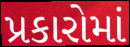
પ્રકારોમાં